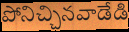
పోనిచ్చినవాడేడి